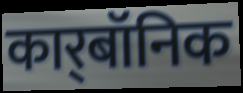
कार्‌बॉनिक